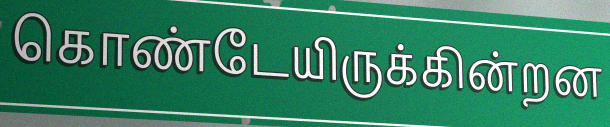
கொண்டேயிருக்கின்றன